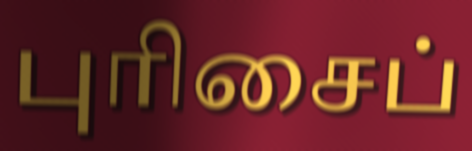
புரிசைப்